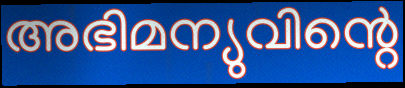
അഭിമന്യുവിന്റെ